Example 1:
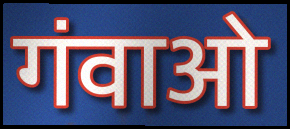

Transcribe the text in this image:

गंवाओ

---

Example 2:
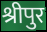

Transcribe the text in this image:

श्रीपुर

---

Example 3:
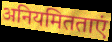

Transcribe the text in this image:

अनियमितताएं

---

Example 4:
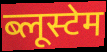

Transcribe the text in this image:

ब्लूस्टेम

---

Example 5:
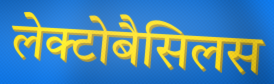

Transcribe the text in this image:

लेक्टोबैसिलस